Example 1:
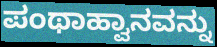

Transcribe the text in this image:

ಪಂಥಾಹ್ವಾನವನ್ನು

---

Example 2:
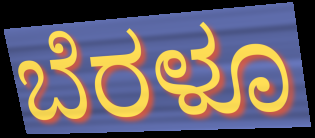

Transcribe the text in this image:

ಬೆರಳೂ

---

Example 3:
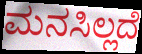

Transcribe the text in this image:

ಮನಸಿಲ್ಲದೆ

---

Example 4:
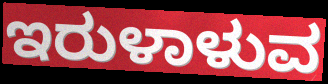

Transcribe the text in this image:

ಇರುಳಾಳುವ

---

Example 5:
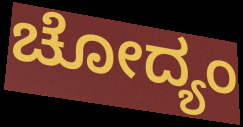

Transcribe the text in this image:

ಚೋದ್ಯಂ